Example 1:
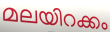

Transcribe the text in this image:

മലയിറക്കം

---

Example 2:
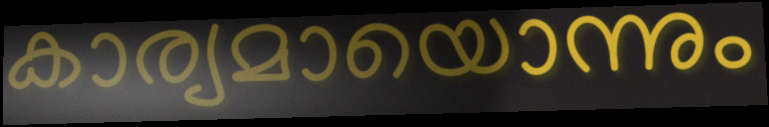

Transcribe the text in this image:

കാര്യമായൊന്നും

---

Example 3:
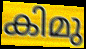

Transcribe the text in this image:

കിമു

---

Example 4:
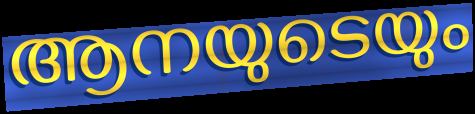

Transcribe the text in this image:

ആനയുടെയും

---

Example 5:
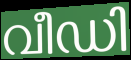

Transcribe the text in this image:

വീഡി